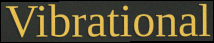
Vibrational